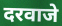
दरवाजे